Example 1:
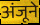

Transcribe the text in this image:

अंजूने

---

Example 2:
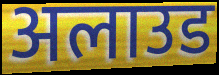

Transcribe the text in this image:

अलाउड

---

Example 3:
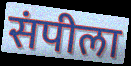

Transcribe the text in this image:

संपीला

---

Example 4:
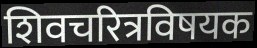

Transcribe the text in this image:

शिवचरित्रविषयक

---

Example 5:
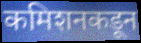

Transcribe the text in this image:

कमिशनकडून